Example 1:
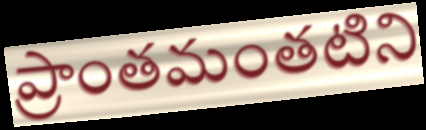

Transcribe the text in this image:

ప్రాంతమంతటిని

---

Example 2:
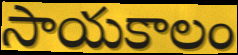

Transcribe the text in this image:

సాయకాలం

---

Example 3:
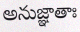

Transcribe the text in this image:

అనుజ్ఞాతాః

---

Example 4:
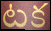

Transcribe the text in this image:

టక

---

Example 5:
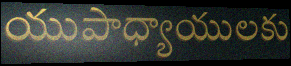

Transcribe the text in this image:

యుపాధ్యాయులకు